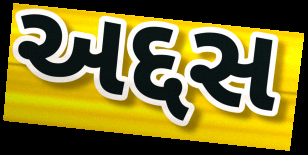
અદ્દસ